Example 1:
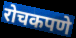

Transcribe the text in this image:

रोचकपणे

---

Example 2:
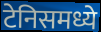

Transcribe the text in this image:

टेनिसमध्ये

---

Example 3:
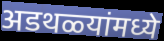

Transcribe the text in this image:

अडथळ्यांमध्ये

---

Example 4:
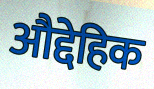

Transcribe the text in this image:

औद्देहिक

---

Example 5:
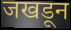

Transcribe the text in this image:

जखडून